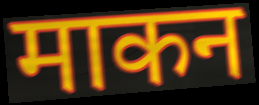
माकन